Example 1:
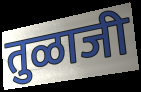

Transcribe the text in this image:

तुळाजी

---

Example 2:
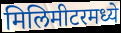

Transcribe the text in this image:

मिलिमीटरमध्ये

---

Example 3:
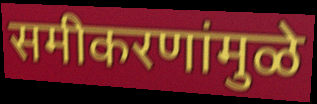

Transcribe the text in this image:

समीकरणांमुळे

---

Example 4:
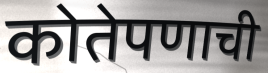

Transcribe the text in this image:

कोतेपणाची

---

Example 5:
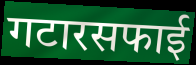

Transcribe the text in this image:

गटारसफाई